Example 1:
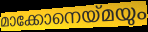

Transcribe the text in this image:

മാക്കോനെയ്മയും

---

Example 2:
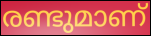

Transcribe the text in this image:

രണ്ടുമാണ്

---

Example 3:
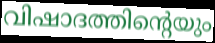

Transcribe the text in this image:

വിഷാദത്തിന്റെയും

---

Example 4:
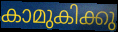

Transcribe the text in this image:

കാമുകിക്കു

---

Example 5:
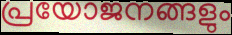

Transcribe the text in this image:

പ്രയോജനങ്ങളും